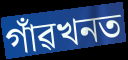
গাঁৱখনত